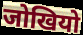
जोखियो